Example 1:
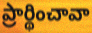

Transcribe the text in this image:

ప్రార్థించావా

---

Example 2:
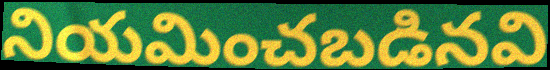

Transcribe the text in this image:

నియమించబడినవి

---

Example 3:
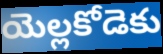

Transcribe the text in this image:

యెల్లకోడెకు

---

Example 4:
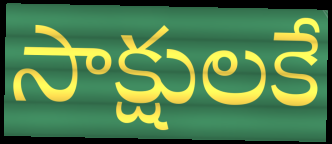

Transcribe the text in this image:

సాక్షులకే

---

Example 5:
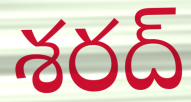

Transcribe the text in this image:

శరద్